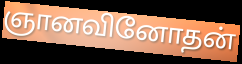
ஞானவினோதன்